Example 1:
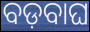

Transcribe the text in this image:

ବଡ଼ବାଘ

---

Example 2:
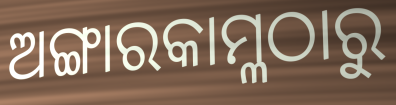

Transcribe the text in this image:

ଅଙ୍ଗାରକାମ୍ଳଠାରୁ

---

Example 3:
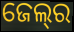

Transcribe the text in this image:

ଜେଲ୍‍ର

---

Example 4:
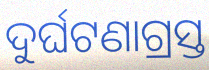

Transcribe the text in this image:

ଦୁର୍ଘଟଣାଗ୍ରସ୍ତ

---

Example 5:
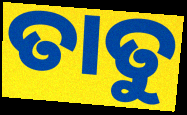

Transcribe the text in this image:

ତାତୁ